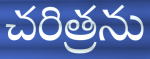
చరిత్రను